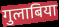
गुलाबिया